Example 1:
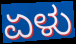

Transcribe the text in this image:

ಏಳು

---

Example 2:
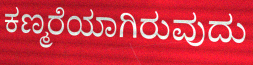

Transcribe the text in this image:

ಕಣ್ಮರೆಯಾಗಿರುವುದು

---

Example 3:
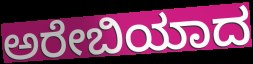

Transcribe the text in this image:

ಅರೇಬಿಯಾದ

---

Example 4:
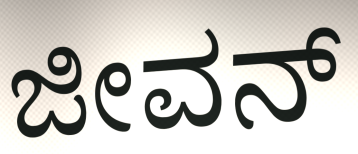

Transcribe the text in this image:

ಜೀವನ್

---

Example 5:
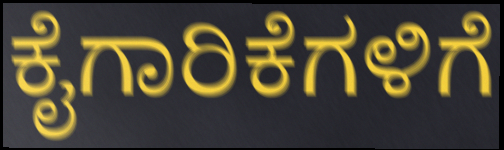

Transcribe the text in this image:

ಕೈಗಾರಿಕೆಗಳಿಗೆ